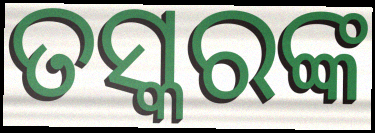
ତସ୍କରଙ୍କ